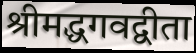
श्रीमद्धगवद्वीता